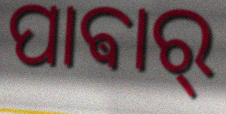
ପାଵାର୍